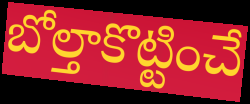
బోల్తాకొట్టించే